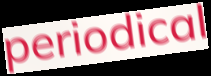
periodical